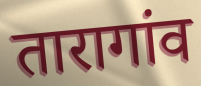
तारागांव